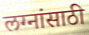
लग्नांसाठी